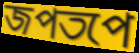
জপতপে